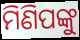
ମିଣିପଙ୍କୁ